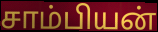
சாம்பியன்